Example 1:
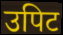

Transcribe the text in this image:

उपिट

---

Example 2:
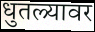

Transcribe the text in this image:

धुतल्यावर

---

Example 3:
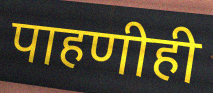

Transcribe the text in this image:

पाहणीही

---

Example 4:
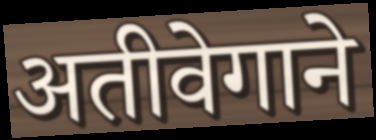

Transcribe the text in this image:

अतीवेगाने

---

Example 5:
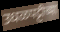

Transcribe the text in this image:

उधळपट्टीच्या